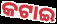
କଟାଇ